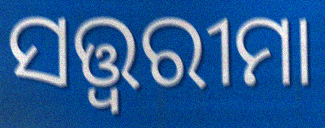
ସତ୍ତ୍ୱରୀମା